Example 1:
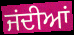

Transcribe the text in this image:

ਜਂਦੀਆਂ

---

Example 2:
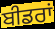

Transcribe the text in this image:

ਬੀਡਰਾਂ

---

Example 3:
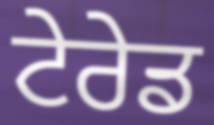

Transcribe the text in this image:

ਟੇਰੇਡ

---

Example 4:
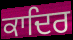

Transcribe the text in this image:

ਕਾਦਿਰ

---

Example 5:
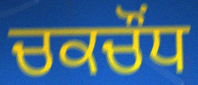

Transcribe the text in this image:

ਚਕਚੌਂਧ